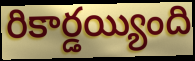
రికార్డయ్యింది